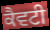
ਕੈਵਟੀ